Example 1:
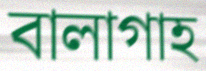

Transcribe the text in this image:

বালাগাহ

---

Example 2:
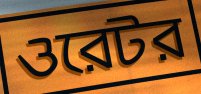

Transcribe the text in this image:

ওরেটর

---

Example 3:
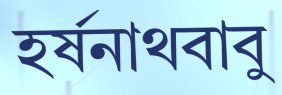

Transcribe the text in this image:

হর্ষনাথবাবু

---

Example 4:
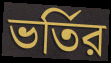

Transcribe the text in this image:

ভর্তির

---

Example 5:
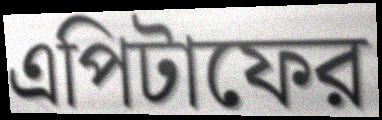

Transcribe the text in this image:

এপিটাফের